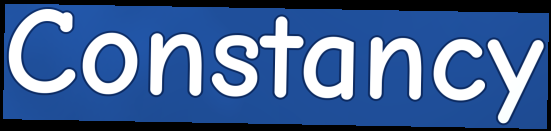
Constancy